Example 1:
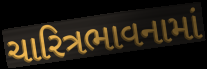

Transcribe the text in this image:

ચારિત્રભાવનામાં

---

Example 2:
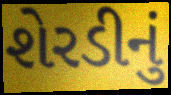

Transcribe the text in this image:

શેરડીનું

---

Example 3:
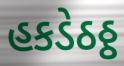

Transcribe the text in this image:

હકડેઠઠ્ઠ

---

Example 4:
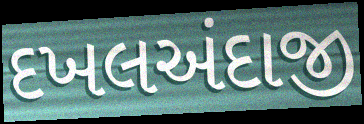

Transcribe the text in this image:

દખલઅંદાજી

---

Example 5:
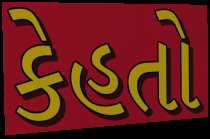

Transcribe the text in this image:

કેહતો